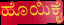
ಹೊಯಿಕೈ